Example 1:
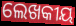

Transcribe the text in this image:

ଲେଖକୀୟ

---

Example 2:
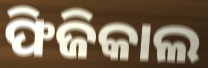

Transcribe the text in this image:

ଫିଜିକାଲ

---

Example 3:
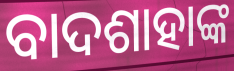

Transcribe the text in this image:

ବାଦଶାହାଙ୍କ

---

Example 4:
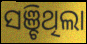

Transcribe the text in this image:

ସଞ୍ଚିଥିଲା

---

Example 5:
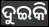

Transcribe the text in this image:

ଦୁଇକି